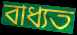
বাধ্যত